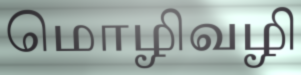
மொழிவழி